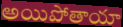
అయిపోతాయా